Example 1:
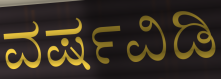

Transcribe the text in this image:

ವರ್ಷವಿಡಿ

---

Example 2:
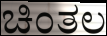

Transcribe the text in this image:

ಚಿಂತಲ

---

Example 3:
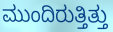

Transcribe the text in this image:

ಮುಂದಿರುತ್ತಿತ್ತು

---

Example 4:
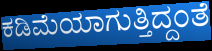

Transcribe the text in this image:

ಕಡಿಮೆಯಾಗುತ್ತಿದ್ದಂತೆ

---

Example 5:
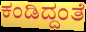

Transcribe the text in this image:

ಕಂಡಿದ್ದಂತೆ